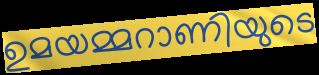
ഉമയമ്മറാണിയുടെ